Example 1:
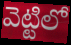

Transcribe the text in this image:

వెట్టిలో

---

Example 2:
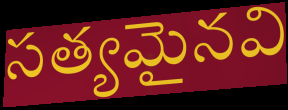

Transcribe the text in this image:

సత్యమైనవి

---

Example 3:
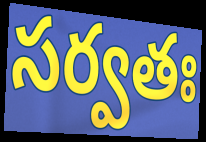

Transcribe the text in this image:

సర్వతః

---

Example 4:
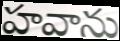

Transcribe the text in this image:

హవాను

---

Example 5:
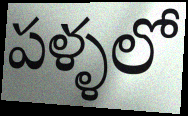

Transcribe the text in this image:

పళ్ళలో